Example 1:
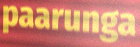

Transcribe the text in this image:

paarunga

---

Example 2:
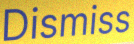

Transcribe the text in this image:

Dismiss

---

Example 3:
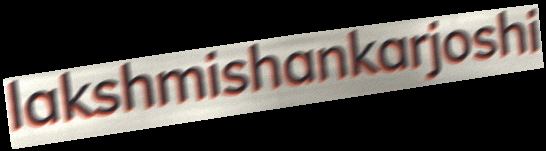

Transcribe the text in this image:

lakshmishankarjoshi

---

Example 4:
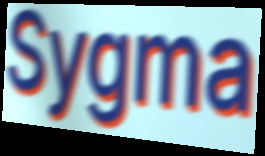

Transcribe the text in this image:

Sygma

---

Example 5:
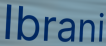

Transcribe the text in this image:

Ibrani